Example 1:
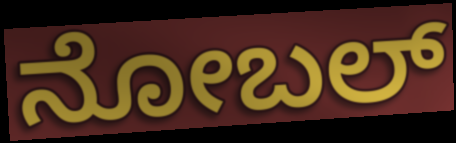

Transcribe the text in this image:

ನೋಬಲ್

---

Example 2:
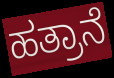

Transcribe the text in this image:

ಹತ್ರಾನೆ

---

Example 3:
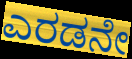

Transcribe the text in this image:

ಎರಡನೇ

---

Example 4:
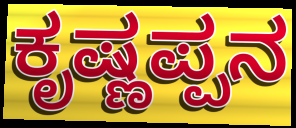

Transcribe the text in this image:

ಕೃಷ್ಣಪ್ಪನ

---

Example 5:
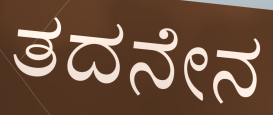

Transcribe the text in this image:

ತದನೇನ